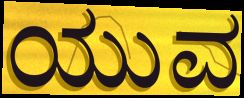
ಯುವ